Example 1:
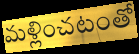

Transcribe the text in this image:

మళ్లించటంతో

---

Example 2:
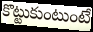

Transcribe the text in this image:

కొట్టుకుంటుంటే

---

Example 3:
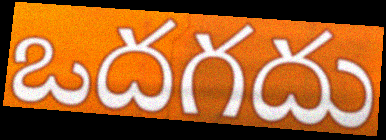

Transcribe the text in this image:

ఒదగదు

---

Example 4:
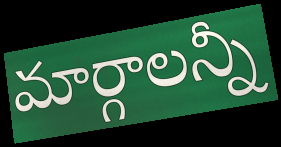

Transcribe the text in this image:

మార్గాలన్నీ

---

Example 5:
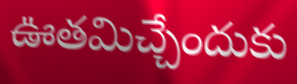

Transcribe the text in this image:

ఊతమిచ్చేందుకు